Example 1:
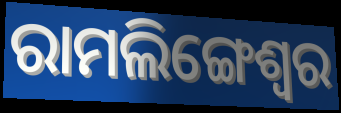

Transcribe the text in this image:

ରାମଲିଙ୍ଗେଶ୍ୱର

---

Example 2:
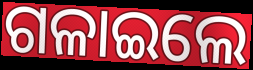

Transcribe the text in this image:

ଗଳାଇଲେ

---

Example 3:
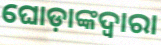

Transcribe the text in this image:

ଘୋଡ଼ାଙ୍କଦ୍ୱାରା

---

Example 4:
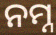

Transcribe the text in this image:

ନମ୍ନ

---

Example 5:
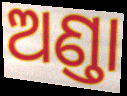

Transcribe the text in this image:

ଅଣ୍ଡା